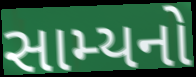
સામ્યનો